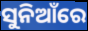
ସୁନିଆଁରେ